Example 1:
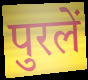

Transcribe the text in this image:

पुरलें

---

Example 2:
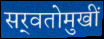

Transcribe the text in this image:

सर्वतोमुखीं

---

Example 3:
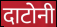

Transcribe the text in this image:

दाटोनी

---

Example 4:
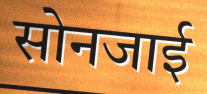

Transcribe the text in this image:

सोनजाई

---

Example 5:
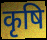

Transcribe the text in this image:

कृषि